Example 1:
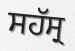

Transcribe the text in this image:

ਸਹੱਸ੍ਰ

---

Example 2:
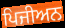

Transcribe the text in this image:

ਪਿਜੀਅਨ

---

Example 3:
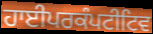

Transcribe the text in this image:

ਹਾਈਪਰਕੰਪਟੀਟਿਵ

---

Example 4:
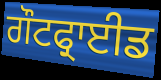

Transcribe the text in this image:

ਗੌਟਫ੍ਰਾਈਡ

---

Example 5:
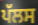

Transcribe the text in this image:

ਪੱਲਸ